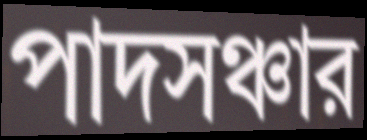
পাদসঞ্চার